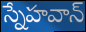
స్నేహవాన్